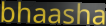
bhaasha